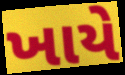
ખાયે